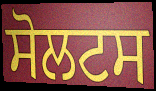
ਸੋਲਟਸ